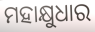
ମହାକ୍ଷୁଧାର